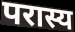
परास्य